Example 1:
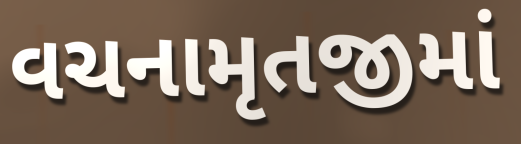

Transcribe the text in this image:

વચનામૃતજીમાં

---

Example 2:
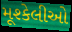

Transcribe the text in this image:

મૂશ્કેલીઓ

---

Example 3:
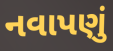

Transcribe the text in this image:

નવાપણું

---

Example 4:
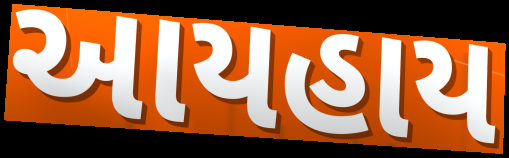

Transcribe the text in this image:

આયહાય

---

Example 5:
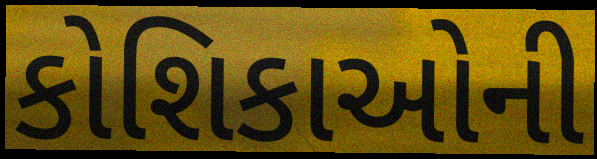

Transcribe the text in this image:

કોશિકાઓની